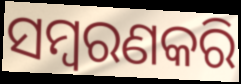
ସମ୍ବରଣକରି